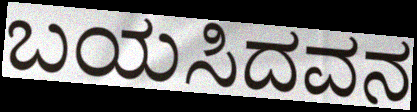
ಬಯಸಿದವನ